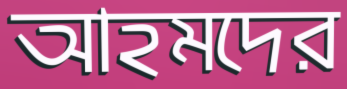
আহমদের